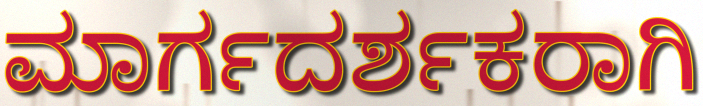
ಮಾರ್ಗದರ್ಶಕರಾಗಿ